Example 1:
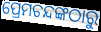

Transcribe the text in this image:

ପ୍ରେମଚନ୍ଦଙ୍କଠାରୁ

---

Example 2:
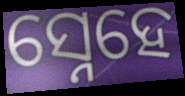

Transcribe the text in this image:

ସ୍ନେହେ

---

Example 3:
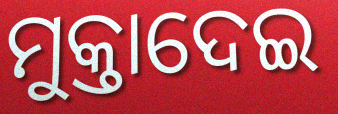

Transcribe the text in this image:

ମୁକ୍ତାଦେଇ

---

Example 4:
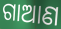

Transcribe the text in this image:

ଗାଆଣ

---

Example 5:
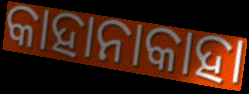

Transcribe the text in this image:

କାହାନାକାହା